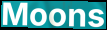
Moons